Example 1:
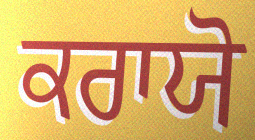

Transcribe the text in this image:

ਕਰਾਯੋ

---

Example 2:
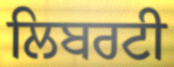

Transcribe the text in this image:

ਲਿਬਰਟੀ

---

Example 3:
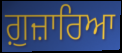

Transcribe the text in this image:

ਗ਼ੁਜ਼ਾਰਿਆ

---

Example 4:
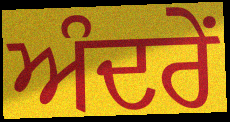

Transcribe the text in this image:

ਅੰਦਰੇਂ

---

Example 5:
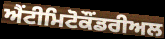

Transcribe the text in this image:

ਐਂਟੀਮਿਟੋਕੌਂਡਰੀਅਲ